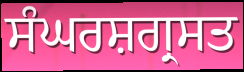
ਸੰਘਰਸ਼ਗ੍ਰਸਤ